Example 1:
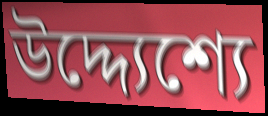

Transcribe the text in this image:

উদ্দ্যেশ্যে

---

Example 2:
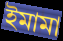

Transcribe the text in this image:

ইমামা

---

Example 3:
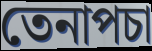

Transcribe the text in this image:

তেনাপচা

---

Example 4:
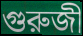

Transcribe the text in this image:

গুরুজী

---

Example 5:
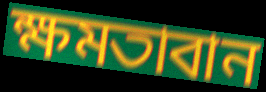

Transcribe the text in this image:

ক্ষমতাবান